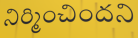
నిర్మించిందని